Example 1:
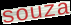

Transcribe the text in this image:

souza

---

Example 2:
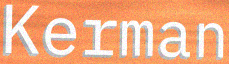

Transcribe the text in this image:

Kerman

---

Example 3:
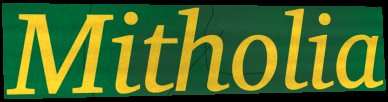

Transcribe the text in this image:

Mitholia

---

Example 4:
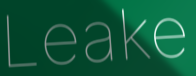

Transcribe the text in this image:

Leake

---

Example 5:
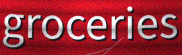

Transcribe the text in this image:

groceries